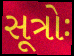
સૂત્રોઃ